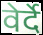
वेर्दे